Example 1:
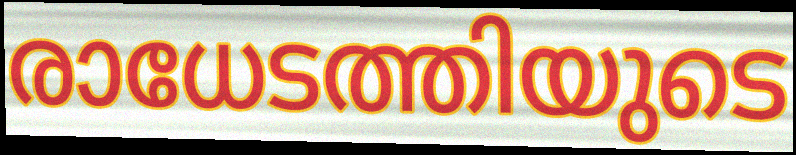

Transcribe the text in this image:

രാധേടത്തിയുടെ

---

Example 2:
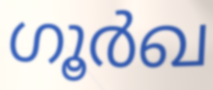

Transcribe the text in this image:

ഗൂർഖ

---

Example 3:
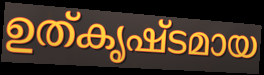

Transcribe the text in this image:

ഉത്കൃഷ്ടമായ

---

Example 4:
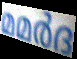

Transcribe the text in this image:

മമർദ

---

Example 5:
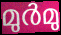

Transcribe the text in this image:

മുർമു